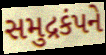
સમુદ્રકંપને